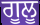
ਗੂਲੂ